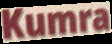
Kumra